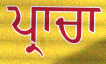
ਪ੍ਰਾਚਾ